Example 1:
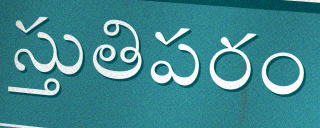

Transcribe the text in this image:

స్తుతిపరం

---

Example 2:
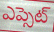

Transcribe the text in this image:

ఎప్సెట్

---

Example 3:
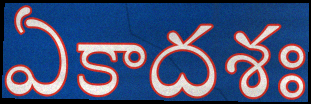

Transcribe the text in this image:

ఏకాదశః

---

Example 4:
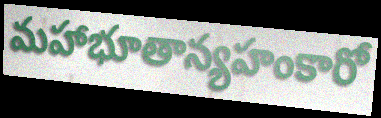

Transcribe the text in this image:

మహాభూతాన్యహంకారో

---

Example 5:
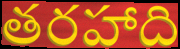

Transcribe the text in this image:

తరహాది